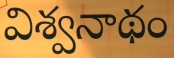
విశ్వనాథం